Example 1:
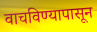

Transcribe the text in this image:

वाचविण्यापासून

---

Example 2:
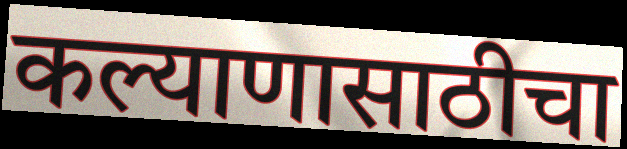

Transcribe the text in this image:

कल्याणासाठीचा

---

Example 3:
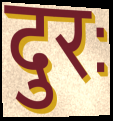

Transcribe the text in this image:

दुरः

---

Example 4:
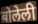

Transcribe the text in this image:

बोलेली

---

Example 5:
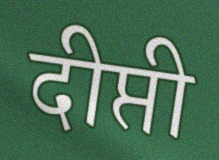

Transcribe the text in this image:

दीप्ती